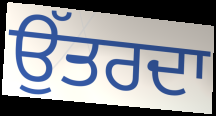
ਉੱਤਰਦਾ